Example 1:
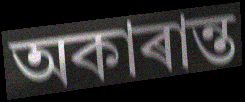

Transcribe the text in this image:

অকাৰান্ত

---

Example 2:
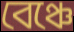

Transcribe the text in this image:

বেঞ্চে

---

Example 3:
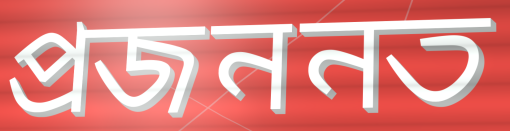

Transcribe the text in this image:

প্ৰজননত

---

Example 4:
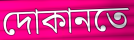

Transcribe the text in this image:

দোকানতে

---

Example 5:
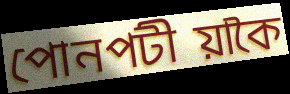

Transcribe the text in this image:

পোনপটীয়াকৈ